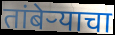
तांबेऱ्याचा